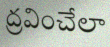
ద్రవించేలా